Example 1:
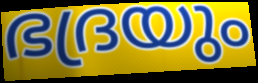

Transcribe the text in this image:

ഭദ്രയും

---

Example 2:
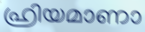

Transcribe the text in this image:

ഹ്രിയമാണാ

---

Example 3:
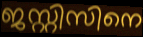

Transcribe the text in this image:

ജസ്റ്റിസിനെ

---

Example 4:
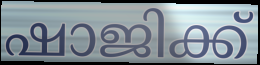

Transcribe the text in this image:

ഷാജിക്ക്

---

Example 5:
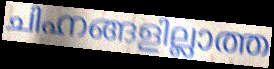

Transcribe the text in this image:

ചിഹ്നങ്ങളില്ലാത്ത